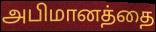
அபிமானத்தை